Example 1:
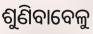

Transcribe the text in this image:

ଶୁଣିବାବେଳୁ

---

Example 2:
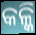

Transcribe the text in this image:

କଳ୍କି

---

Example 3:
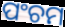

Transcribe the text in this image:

ପଂଚମ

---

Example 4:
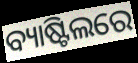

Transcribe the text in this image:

ବ୍ୟାଷ୍ଟିଲରେ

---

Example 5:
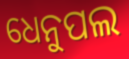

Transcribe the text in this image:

ଧେନୁପଲ